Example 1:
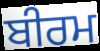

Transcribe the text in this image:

ਬੀਰਮ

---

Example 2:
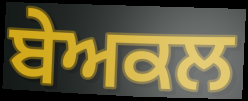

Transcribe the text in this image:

ਬੇਅਕਲ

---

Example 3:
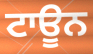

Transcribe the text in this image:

ਟਾਊਨ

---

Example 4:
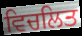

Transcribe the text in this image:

ਵਿਚਲਿਤ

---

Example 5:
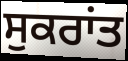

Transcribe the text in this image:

ਸੁਕਰਾਂਤ